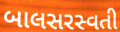
બાલસરસ્વતી